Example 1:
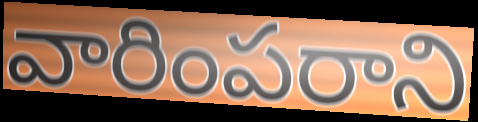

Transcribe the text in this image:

వారింపరాని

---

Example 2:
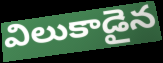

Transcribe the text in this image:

విలుకాడైన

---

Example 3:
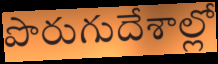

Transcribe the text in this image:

పొరుగుదేశాల్లో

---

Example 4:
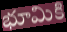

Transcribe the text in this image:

భూమికి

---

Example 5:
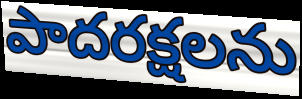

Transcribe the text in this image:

పాదరక్షలను